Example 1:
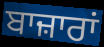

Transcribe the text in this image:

ਬਾਜ਼ਾਰਾਂ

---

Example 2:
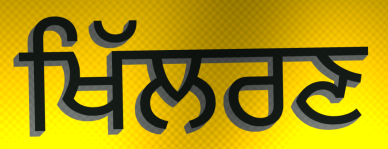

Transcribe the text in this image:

ਖਿੱਲਰਣ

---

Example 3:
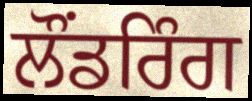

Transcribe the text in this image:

ਲੌਂਡਰਿੰਗ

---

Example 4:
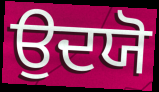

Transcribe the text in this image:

ਉਦਯੋ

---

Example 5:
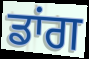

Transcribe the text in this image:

ਡਾਂਗ